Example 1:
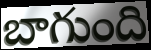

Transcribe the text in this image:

బాగుంది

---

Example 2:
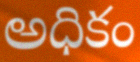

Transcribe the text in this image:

అధికం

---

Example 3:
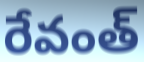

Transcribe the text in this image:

రేవంత్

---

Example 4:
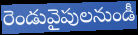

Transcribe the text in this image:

రెండువైపులనుండీ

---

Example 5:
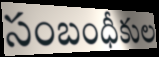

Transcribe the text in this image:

సంబంధీకుల